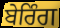
ਬੇਰਿੰਗ